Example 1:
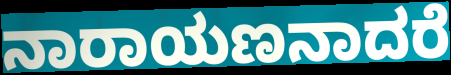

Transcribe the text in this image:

ನಾರಾಯಣನಾದರೆ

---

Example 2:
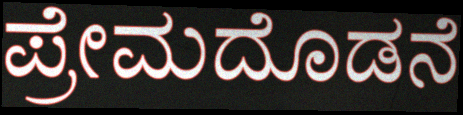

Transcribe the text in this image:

ಪ್ರೇಮದೊಡನೆ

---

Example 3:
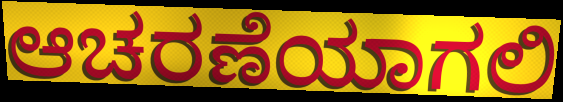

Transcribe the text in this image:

ಆಚರಣೆಯಾಗಲಿ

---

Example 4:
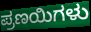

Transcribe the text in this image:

ಪ್ರಣಯಿಗಳು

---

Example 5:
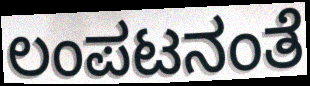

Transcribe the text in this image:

ಲಂಪಟನಂತೆ